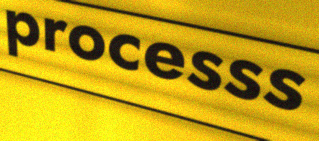
processs